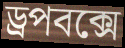
ড্রপবক্সে